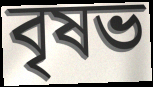
বৃষভ